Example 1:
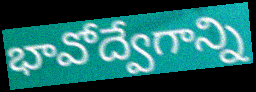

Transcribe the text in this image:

భావోద్వేగాన్ని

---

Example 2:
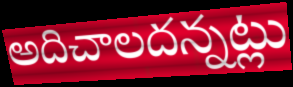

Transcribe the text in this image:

అదిచాలదన్నట్లు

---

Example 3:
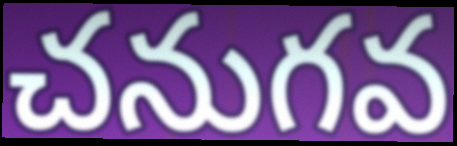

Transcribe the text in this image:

చనుగవ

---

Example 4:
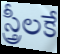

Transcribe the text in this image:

స్త్రీలకే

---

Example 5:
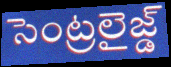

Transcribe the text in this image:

సెంట్రలైజ్డ్